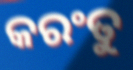
କରଂତୁ